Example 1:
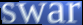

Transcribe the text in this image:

swar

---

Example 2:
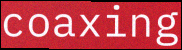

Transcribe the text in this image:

coaxing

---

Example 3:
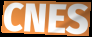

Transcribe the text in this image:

CNES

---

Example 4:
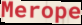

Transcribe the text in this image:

Merope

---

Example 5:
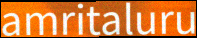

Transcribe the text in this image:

amritaluru